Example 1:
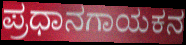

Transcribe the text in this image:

ಪ್ರಧಾನಗಾಯಕನ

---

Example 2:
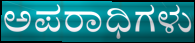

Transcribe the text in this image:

ಅಪರಾಧಿಗಳು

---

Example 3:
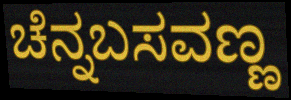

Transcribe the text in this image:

ಚೆನ್ನಬಸವಣ್ಣ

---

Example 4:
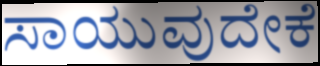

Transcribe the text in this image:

ಸಾಯುವುದೇಕೆ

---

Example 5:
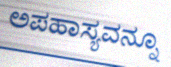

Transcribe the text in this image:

ಅಪಹಾಸ್ಯವನ್ನೂ